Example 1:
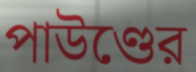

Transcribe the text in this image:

পাউণ্ডের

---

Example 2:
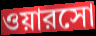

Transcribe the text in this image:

ওয়ারসো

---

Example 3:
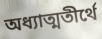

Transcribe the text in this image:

অধ্যাত্মতীর্থে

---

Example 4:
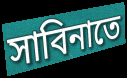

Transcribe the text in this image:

সাবিনাতে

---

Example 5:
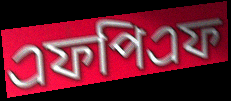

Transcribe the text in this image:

এফপিএফ